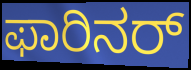
ಫಾರಿನರ್